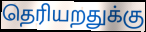
தெரியறதுக்கு